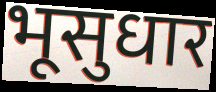
भूसुधार